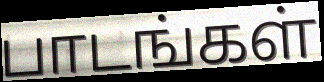
பாடங்கள்